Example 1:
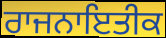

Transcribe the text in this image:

ਰਾਜਨਾਇਤੀਕ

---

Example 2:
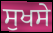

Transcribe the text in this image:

ਸੁਖਸੇ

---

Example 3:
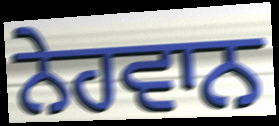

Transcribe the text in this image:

ਨੇਹਵਾਨ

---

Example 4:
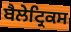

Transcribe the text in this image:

ਬੈਲੇਟ੍ਰਿਕਸ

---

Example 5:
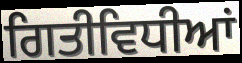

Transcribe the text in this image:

ਗਿਤੀਵਿਧੀਆਂ